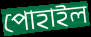
পোহাইল